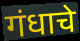
गंधाचे